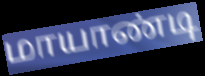
மாயாண்டி